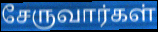
சேருவார்கள்